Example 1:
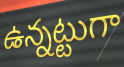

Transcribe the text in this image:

ఉన్నట్టుగా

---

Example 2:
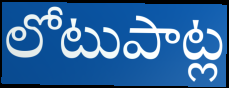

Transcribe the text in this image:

లోటుపాట్ల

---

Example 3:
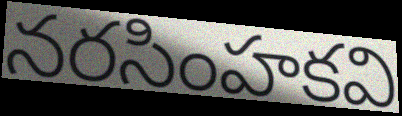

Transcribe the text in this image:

నరసింహకవి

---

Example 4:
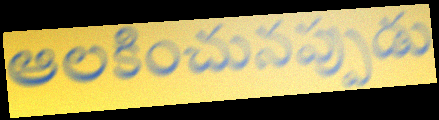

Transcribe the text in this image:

ఆలకించునప్పుడు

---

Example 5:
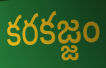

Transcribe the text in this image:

కరకజ్జం